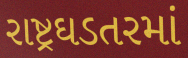
રાષ્ટ્રઘડતરમાં